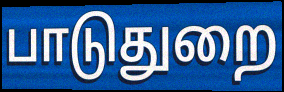
பாடுதுறை